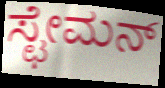
ಸ್ಟೇಮನ್